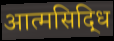
आत्मसिद्धि